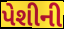
પેશીની